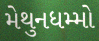
મેથુનધમ્મો